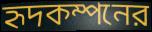
হৃদকম্পনের